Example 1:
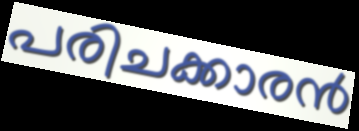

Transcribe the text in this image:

പരിചക്കാരൻ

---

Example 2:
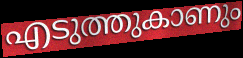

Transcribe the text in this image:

എടുത്തുകാണും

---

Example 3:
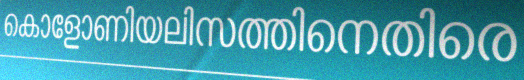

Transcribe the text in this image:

കൊളോണിയലിസത്തിനെതിരെ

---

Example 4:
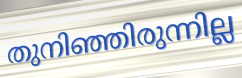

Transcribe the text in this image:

തുനിഞ്ഞിരുന്നില്ല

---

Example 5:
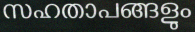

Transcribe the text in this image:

സഹതാപങ്ങളും